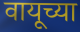
वायूच्या